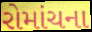
રોમાંચના